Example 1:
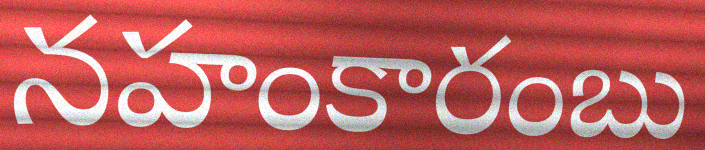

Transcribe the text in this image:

నహంకారంబు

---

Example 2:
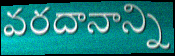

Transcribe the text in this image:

వరదానాన్ని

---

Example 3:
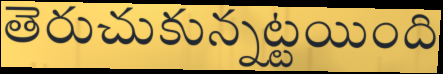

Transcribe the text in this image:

తెరుచుకున్నట్టయింది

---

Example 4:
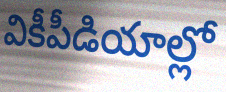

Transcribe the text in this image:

వికీపీడియాల్లో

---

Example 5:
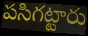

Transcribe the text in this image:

పసిగట్టారు